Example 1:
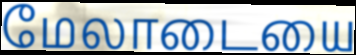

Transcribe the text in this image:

மேலாடையை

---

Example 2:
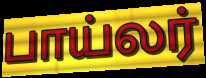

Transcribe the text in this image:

பாய்லர்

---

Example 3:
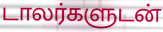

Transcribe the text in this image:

டாலர்களுடன்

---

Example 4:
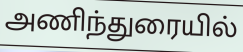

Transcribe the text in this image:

அணிந்துரையில்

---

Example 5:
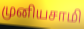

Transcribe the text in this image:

முனியசாமி